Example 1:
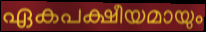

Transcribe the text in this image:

ഏകപക്ഷീയമായും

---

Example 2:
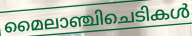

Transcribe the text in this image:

മൈലാഞ്ചിചെടികൾ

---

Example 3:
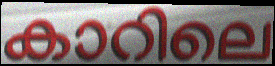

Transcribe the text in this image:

കാറിലെ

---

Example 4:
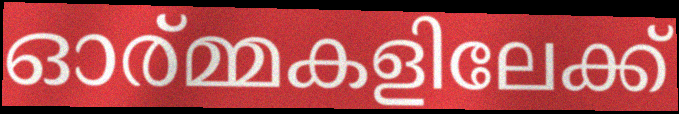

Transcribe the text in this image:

ഓര്മ്മകളിലേക്ക്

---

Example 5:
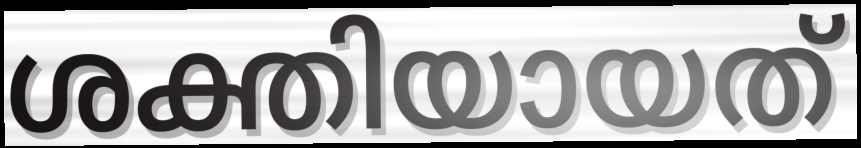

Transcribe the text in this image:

ശക്തിയായത്